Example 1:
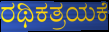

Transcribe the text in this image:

ರಥಿಕತ್ರಯಕೆ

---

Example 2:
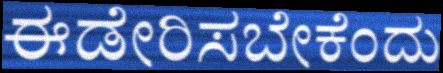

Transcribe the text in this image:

ಈಡೇರಿಸಬೇಕೆಂದು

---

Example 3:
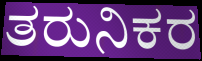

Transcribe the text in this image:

ತರುನಿಕರ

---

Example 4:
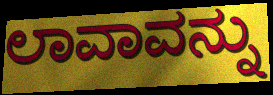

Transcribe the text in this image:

ಲಾವಾವನ್ನು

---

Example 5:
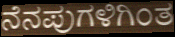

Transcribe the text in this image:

ನೆನಪುಗಳಿಗಿಂತ